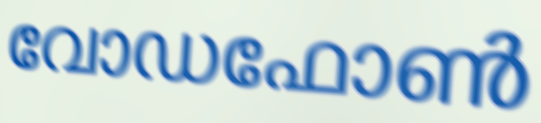
വോഡഫോൺ